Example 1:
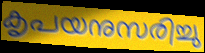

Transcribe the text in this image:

കൃപയനുസരിച്ചു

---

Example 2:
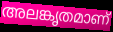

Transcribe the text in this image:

അലങ്കൃതമാണ്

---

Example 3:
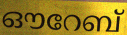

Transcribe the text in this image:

ഔറേബ്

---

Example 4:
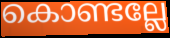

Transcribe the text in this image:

കൊണ്ടല്ലേ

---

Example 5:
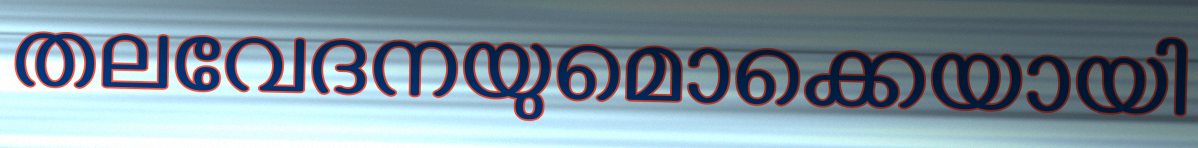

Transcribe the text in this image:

തലവേദനയുമൊക്കെയായി